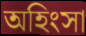
অহিংসা